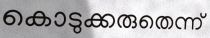
കൊടുക്കരുതെന്ന്